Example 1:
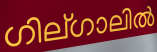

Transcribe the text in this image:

ഗില്ഗാലിൽ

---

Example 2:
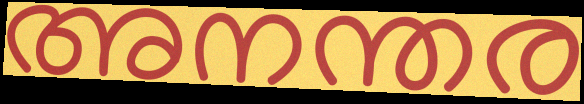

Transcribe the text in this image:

അനന്തര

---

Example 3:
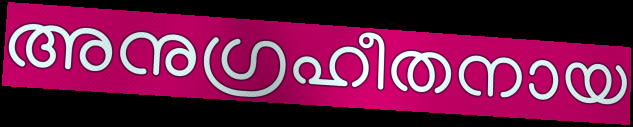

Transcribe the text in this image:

അനുഗ്രഹീതനായ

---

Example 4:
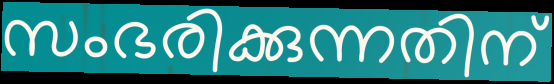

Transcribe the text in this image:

സംഭരിക്കുന്നതിന്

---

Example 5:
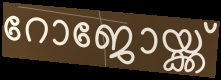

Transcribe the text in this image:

റോജോയ്ക്ക്